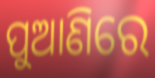
ପୁଆଣିରେ